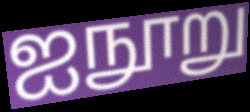
ஐநூறு